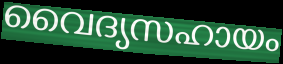
വൈദ്യസഹായം